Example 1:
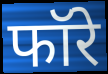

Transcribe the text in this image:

फॉरे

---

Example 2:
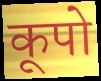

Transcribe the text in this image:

कूपो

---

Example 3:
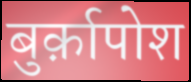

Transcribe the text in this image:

बुर्क़ापोश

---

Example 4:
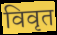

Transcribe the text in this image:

विवृत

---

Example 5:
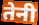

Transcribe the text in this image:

तेनी